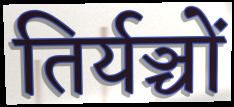
तिर्यञ्चों